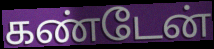
கண்டேன்